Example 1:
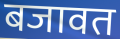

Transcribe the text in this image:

बजावत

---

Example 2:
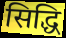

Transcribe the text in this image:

सिद्धि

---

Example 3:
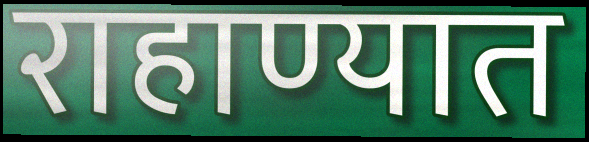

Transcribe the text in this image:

राहाण्यात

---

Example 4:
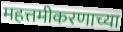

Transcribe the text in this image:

महत्तमीकरणाच्या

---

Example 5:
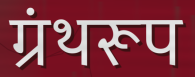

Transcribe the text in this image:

ग्रंथरूप